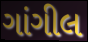
ગાંગીલ